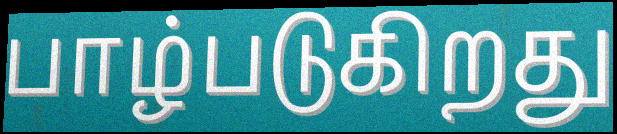
பாழ்படுகிறது